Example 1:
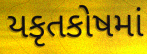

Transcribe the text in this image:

યકૃતકોષમાં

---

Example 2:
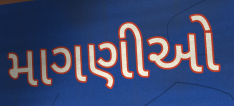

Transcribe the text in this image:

માગણીઓ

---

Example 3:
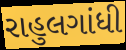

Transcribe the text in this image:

રાહુલગાંધી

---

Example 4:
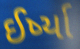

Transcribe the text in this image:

ઈર્ષ્યા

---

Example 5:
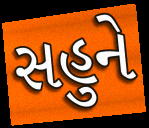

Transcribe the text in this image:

સહુને